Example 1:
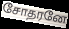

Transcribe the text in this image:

சோதரனே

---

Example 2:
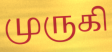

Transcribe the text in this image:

முருகி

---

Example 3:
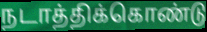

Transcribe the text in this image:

நடாத்திக்கொண்டு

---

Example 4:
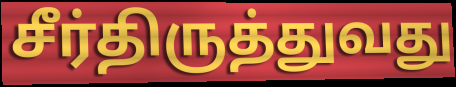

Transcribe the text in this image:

சீர்திருத்துவது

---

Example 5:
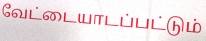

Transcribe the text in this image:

வேட்டையாடப்பட்டும்